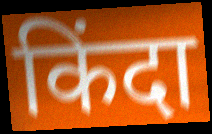
किंदा